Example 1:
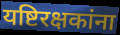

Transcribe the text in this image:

यष्टिरक्षकांना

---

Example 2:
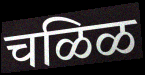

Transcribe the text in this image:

चळिळ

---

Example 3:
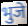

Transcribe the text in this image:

भुजे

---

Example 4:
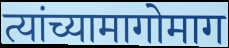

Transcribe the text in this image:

त्यांच्यामागोमाग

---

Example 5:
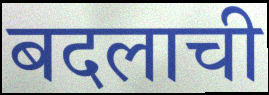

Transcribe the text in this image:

बदलाची